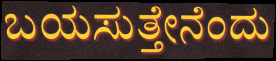
ಬಯಸುತ್ತೇನೆಂದು